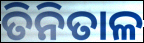
ତିନିତାଳ